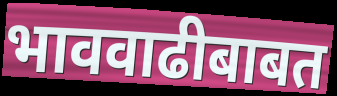
भाववाढीबाबत